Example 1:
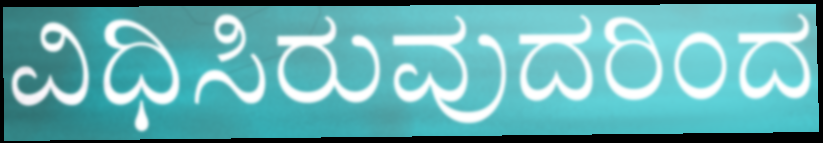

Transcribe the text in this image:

ವಿಧಿಸಿರುವುದರಿಂದ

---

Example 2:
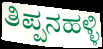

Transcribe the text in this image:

ತಿಪ್ಪನಹಳ್ಳಿ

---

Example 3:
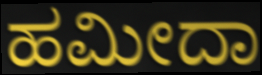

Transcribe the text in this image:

ಹಮೀದಾ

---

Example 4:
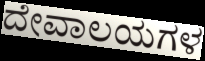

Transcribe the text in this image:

ದೇವಾಲಯಗಳ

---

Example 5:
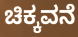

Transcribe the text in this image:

ಚಿಕ್ಕವನೆ